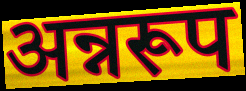
अन्नरूप